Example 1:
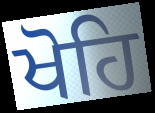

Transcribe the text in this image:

ਖੋਹਿ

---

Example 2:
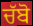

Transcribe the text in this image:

ਚੱਬੋ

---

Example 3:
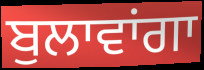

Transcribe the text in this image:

ਬੁਲਾਵਾਂਗਾ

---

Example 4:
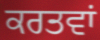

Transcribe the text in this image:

ਕਰਤਵਾਂ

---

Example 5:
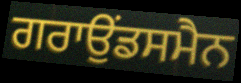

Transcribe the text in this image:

ਗਰਾਉਂਡਸਮੈਨ